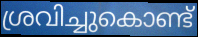
ശ്രവിച്ചുകൊണ്ട്